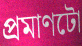
প্ৰমাণটো